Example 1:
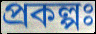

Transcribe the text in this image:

প্ৰকল্পঃ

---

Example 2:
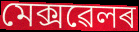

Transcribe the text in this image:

মেক্সৱেলৰ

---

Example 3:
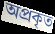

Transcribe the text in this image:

অপ্ৰকৃত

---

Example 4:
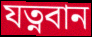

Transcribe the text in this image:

যত্নবান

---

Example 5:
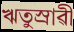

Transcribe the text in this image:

ঋতুস্ৰাৱী